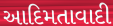
આદિમતાવાદી